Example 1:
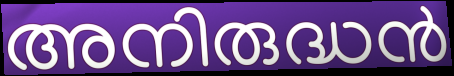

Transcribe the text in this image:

അനിരുദ്ധൻ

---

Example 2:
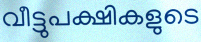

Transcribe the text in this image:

വീട്ടുപക്ഷികളുടെ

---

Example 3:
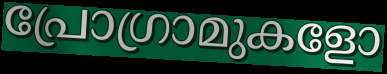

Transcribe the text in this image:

പ്രോഗ്രാമുകളോ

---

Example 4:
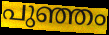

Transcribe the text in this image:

പുഞ്ഞം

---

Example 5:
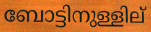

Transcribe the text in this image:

ബോട്ടിനുള്ളില്